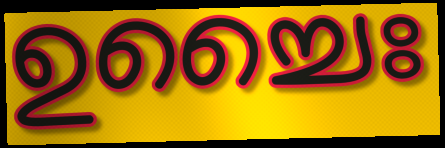
ഉച്ചൈഃ